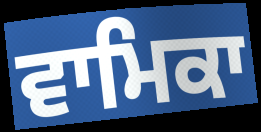
ਵਾਮਿਕਾ